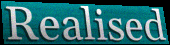
Realised